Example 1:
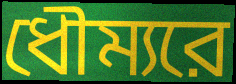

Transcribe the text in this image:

ধৌম্যরে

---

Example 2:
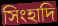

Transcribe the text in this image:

সিংহাদি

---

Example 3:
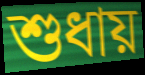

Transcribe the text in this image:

শুধায়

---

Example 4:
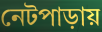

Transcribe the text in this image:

নেটপাড়ায়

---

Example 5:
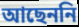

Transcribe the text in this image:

আছেননি